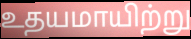
உதயமாயிற்று